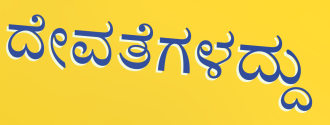
ದೇವತೆಗಳದ್ದು